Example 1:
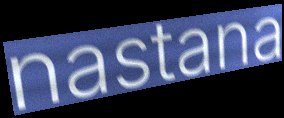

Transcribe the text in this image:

nastana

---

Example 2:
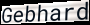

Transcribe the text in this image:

Gebhard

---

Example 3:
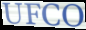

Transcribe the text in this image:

UFCO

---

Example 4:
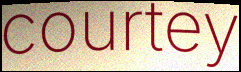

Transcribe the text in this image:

courtey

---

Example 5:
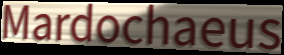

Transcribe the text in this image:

Mardochaeus